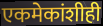
एकमेकांशीही